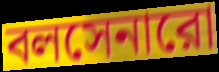
বলসেনারো